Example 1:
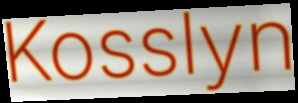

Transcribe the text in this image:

Kosslyn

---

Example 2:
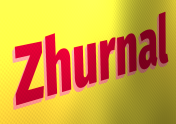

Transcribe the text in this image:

Zhurnal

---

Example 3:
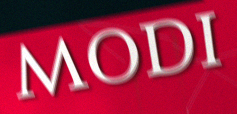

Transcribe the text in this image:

MODI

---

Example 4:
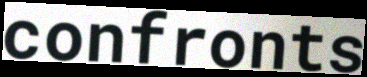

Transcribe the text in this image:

confronts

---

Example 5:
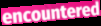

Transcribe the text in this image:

encountered